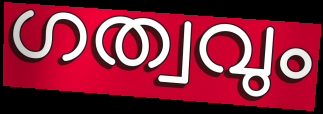
ഗത്വവും